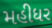
મહીધર